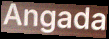
Angada